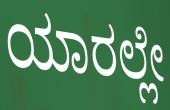
ಯಾರಲ್ಲೇ